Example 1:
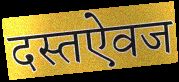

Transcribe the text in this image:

दस्तऐवज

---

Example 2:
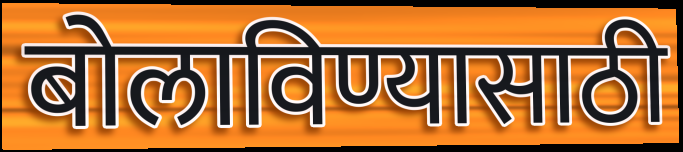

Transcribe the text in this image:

बोलाविण्यासाठी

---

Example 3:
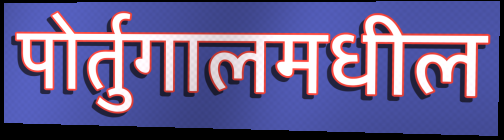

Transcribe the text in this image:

पोर्तुगालमधील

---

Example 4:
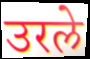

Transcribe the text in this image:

उरले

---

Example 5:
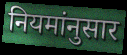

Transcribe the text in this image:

नियमांनुसार